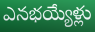
ఎనభయ్యేళ్లు